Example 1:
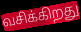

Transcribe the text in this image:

வசிக்கிறது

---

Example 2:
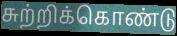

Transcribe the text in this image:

சுற்றிக்கொண்டு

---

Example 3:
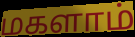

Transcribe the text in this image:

மகளாம்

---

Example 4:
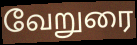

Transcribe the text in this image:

வேறுரை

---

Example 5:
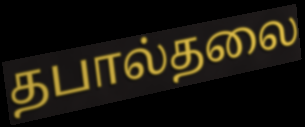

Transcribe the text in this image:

தபால்தலை